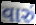
વારું